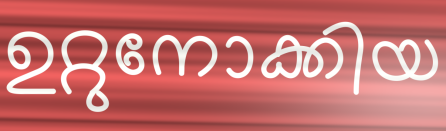
ഉറ്റുനോക്കിയ